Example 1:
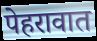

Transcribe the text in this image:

पेहरावात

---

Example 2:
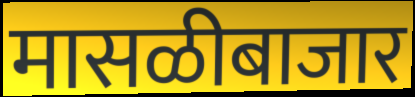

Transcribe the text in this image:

मासळीबाजार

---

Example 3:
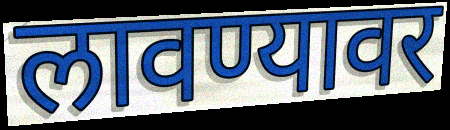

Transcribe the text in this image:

लावण्यावर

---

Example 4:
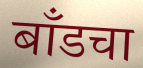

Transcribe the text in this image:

बाँडचा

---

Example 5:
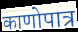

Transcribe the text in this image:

काणोपात्र